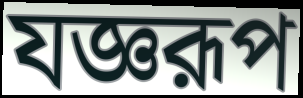
যজ্ঞরূপ